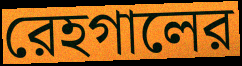
রেহগালের